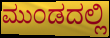
ಮುಂಡದಲ್ಲಿ